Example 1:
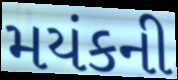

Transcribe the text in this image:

મયંકની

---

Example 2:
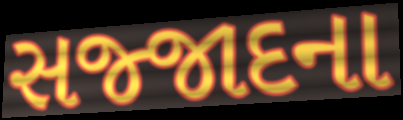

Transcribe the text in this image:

સજ્જાદના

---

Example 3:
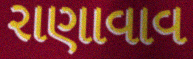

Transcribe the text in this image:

રાણાવાવ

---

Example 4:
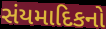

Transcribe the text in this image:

સંયમાદિકનો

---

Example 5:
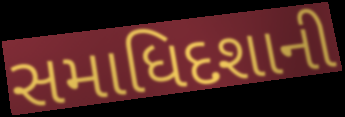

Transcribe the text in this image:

સમાધિદશાની